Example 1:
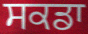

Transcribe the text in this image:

ਸਕਡਾ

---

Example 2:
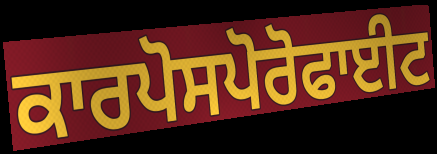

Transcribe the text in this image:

ਕਾਰਪੋਸਪੋਰੋਫਾਈਟ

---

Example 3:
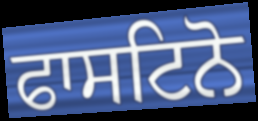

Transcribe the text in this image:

ਫਾਸਟਿਨੋ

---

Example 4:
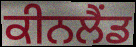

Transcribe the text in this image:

ਕੀਨਲੈਂਡ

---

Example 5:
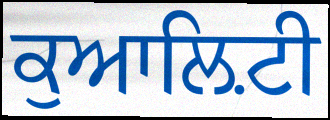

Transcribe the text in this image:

ਕੁਆਲ਼ਿਟੀ